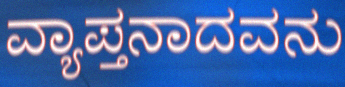
ವ್ಯಾಪ್ತನಾದವನು